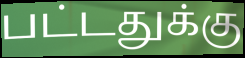
பட்டதுக்கு